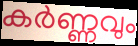
കർണ്ണവും